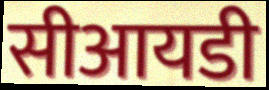
सीआयडी